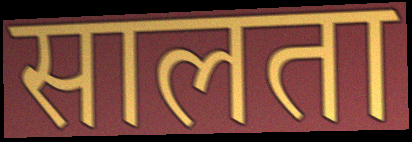
सालता